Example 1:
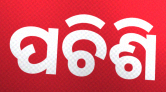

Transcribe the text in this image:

ପଚିଶି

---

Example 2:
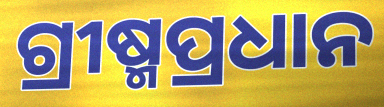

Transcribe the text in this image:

ଗ୍ରୀଷ୍ମପ୍ରଧାନ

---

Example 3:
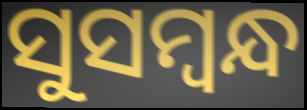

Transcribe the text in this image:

ସୁସମ୍ବନ୍ଧ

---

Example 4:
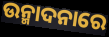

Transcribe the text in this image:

ଉନ୍ମାଦନାରେ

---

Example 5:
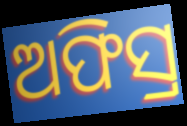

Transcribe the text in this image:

ଅଫିସ୍ର